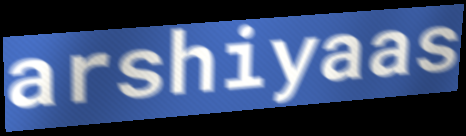
arshiyaas